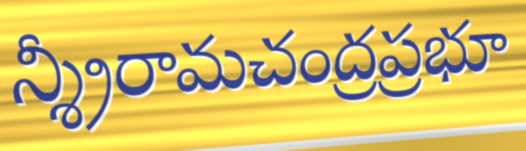
న్శ్రీరామచంద్రప్రభూ